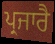
ਪ੍ਰਜਾਰੈ